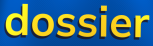
dossier